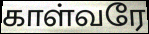
காள்வரே